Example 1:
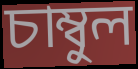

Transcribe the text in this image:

চাম্বুল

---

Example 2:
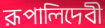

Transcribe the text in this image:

রূপালিদেবী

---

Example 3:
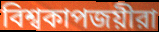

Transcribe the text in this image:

বিশ্বকাপজয়ীরা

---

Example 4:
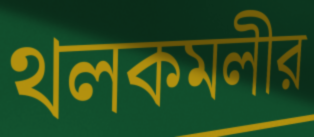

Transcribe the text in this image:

থলকমলীর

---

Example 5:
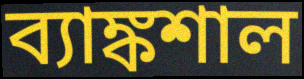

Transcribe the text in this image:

ব্যাঙ্কশাল